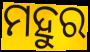
ମହୁର